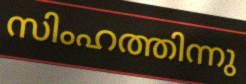
സിംഹത്തിന്നു